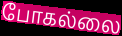
போகல்லை